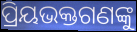
ପ୍ରିୟଭକ୍ତଗଣଙ୍କୁ